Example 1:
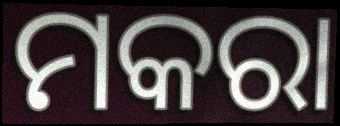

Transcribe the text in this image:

ମକରା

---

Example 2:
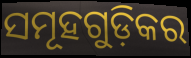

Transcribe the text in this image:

ସମୂହଗୁଡ଼ିକର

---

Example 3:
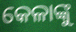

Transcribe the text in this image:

କେଳାଙ୍କୁ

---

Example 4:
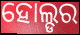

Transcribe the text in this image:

ହୋଲ୍ଡର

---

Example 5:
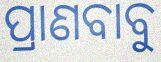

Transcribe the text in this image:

ପ୍ରାଣବାବୁ